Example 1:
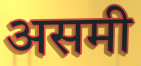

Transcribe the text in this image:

असमी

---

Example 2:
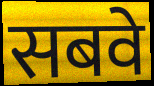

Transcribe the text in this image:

सबवे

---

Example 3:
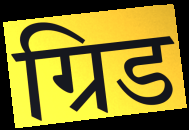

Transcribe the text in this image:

ग्रिड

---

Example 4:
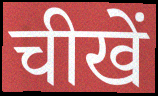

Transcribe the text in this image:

चीखें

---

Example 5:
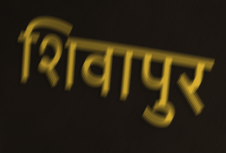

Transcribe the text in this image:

शिवापुर